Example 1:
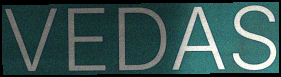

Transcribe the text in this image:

VEDAS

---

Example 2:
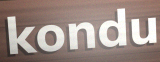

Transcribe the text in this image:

kondu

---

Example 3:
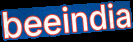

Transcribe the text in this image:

beeindia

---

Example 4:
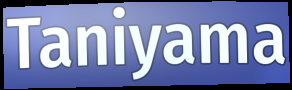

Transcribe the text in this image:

Taniyama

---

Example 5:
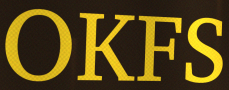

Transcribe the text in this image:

OKFS